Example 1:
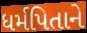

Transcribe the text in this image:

ધર્મપિતાને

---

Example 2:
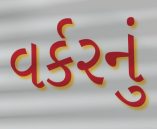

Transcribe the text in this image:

વર્કરનું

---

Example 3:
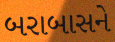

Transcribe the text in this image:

બરાબાસને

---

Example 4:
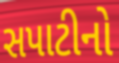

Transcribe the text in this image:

સપાટીનો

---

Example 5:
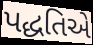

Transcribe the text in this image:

પદ્ધતિએ